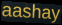
aashay